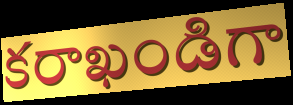
కరాఖండిగా